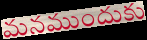
మనముందుకు